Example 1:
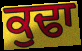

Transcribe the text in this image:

ਕੁਢਾ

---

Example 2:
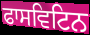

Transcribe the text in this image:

ਫਾਸਵਿਟਿਨ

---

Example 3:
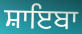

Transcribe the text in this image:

ਸ਼ਾਇਬਾ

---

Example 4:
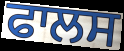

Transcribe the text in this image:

ਫਾਲਸ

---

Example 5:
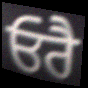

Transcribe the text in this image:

ਓਰੈ